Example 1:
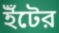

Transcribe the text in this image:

ইঁটের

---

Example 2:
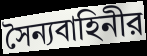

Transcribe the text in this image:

সৈন্যবাহিনীর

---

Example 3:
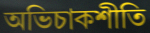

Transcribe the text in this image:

অভিচাকশীতি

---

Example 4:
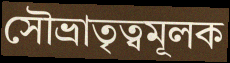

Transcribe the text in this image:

সৌভ্রাতৃত্বমূলক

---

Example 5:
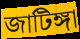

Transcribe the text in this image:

জাটিঙ্গা